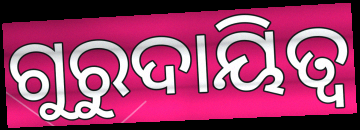
ଗୁରୁଦାୟିତ୍ୱ